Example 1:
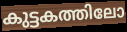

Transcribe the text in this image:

കുട്ടകത്തിലോ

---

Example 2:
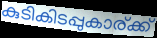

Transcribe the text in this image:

കുടികിടപ്പുകാര്ക്ക്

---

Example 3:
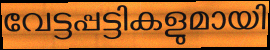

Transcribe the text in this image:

വേട്ടപ്പട്ടികളുമായി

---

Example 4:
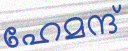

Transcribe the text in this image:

ഹേമന്ദ്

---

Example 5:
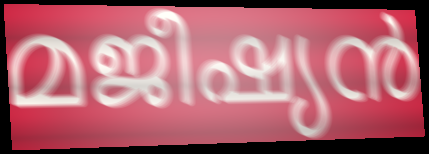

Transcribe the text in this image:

മജീഷ്യൻ